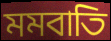
মমবাতি